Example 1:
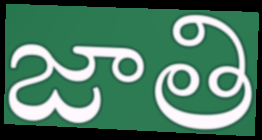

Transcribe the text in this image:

జాతి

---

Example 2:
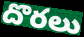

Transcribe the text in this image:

దొరలు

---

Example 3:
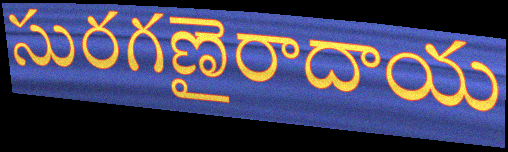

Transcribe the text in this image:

సురగణైరాదాయ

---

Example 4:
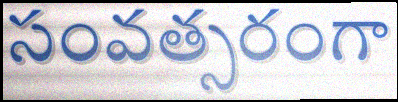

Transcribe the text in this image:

సంవత్సరంగా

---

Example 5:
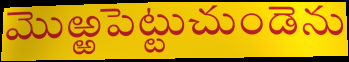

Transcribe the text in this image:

మొఱ్ఱపెట్టుచుండెను